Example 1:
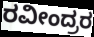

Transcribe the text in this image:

ರವೀಂದ್ರರ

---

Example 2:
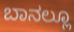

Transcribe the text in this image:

ಬಾನಲ್ಲೂ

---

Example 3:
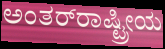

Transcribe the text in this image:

ಅಂತರ್‌ರಾಷ್ಟ್ರೀಯ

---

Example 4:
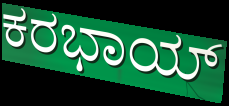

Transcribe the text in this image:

ಕರಭಾಯ್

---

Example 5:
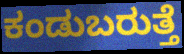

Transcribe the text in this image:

ಕಂಡುಬರುತ್ತೆ